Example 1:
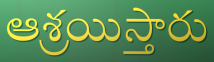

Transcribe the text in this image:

ఆశ్రయిస్తారు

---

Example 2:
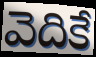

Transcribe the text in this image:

వెదికే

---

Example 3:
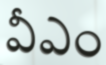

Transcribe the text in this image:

వీఎం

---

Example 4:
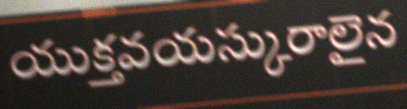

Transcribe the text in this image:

యుక్తవయస్కురాలైన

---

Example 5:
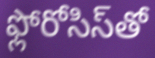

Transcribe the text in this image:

ఫ్లోరోసిస్‌తో